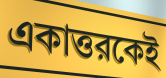
একাত্তরকেই